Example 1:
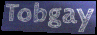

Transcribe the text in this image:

Tobgay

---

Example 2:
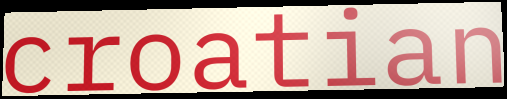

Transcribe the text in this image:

croatian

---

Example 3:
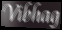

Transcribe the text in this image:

Vibhag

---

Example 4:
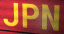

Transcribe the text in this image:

JPN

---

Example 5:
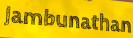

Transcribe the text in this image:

Jambunathan